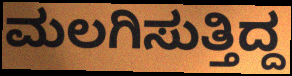
ಮಲಗಿಸುತ್ತಿದ್ದ